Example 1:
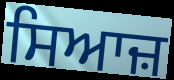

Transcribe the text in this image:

ਸਿਆਜ਼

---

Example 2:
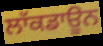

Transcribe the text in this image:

ਲਾੱਕਡਾਊਨ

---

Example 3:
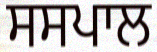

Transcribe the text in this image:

ਸਸਪਾਲ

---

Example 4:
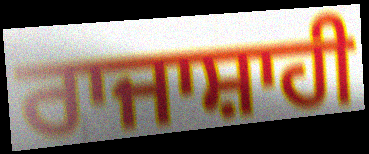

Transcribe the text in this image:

ਰਾਜਾਸ਼ਾਹੀ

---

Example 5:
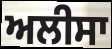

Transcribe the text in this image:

ਅਲੀਸਾ